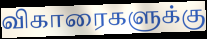
விகாரைகளுக்கு